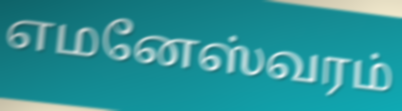
எமனேஸ்வரம்